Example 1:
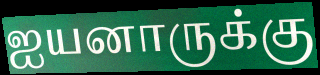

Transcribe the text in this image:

ஐயனாருக்கு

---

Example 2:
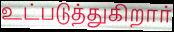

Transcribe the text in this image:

உட்படுத்துகிறார்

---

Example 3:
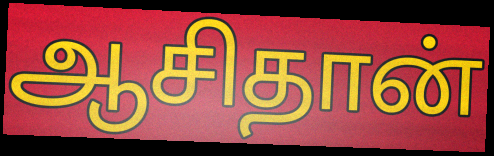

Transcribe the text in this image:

ஆசிதான்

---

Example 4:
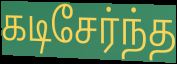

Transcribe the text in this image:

கடிசேர்ந்த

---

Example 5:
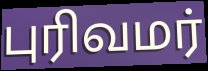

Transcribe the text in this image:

புரிவமர்